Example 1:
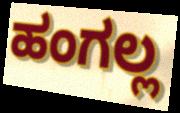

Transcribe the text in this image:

ಹಂಗಲ್ಲ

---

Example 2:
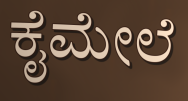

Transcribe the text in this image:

ಕೈಮೇಲೆ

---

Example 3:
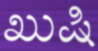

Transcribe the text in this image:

ಖುಷಿ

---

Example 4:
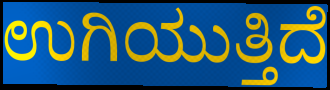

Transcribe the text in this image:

ಉಗಿಯುತ್ತಿದೆ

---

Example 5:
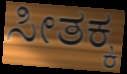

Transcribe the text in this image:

ಸೀತಕ್ಕ